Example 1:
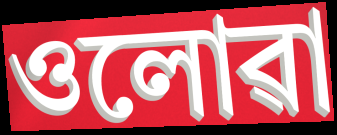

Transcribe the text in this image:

ওলোৱা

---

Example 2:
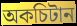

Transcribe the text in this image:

অকচিটান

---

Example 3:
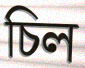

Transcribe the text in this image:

চিল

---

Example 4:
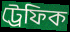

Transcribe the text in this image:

ট্ৰেফিক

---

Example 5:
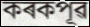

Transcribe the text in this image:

কৰকপূৱ